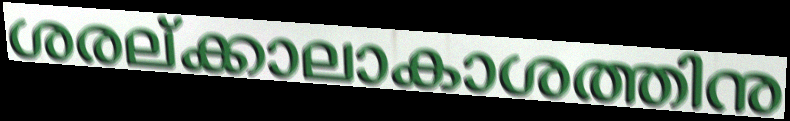
ശരല്ക്കാലാകാശത്തിനു